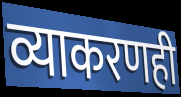
व्याकरणही